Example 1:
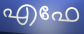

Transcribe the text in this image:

എഫേ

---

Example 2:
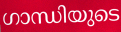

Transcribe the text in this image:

ഗാന്ധിയുടെ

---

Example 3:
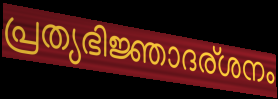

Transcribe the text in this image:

പ്രത്യഭിജ്ഞാദര്ശനം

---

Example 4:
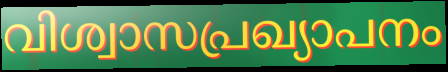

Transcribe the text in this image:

വിശ്വാസപ്രഖ്യാപനം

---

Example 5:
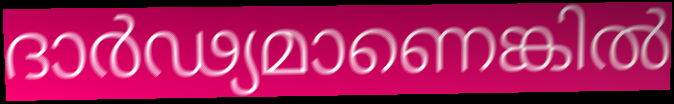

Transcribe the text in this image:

ദാർഢ്യമാണെങ്കിൽ